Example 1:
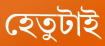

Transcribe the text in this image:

হেতুটাই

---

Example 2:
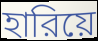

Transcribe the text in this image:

হারিয়ে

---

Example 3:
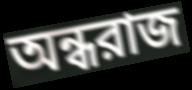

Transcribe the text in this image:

অন্ধরাজ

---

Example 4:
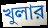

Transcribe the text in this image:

খুলার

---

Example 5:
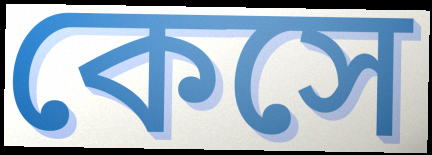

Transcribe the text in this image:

কেসে